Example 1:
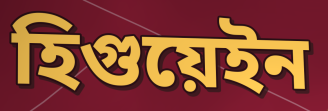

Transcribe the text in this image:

হিগুয়েইন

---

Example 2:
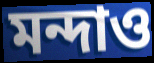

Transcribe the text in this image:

মন্দাও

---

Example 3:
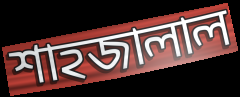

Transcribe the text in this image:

শাহজালাল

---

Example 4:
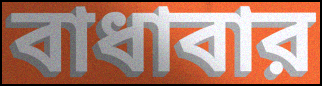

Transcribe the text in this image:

বাধাবার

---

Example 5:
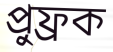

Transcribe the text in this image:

প্রুফ্রক